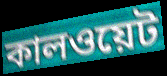
কালওয়েট